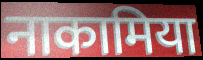
नाकामिया